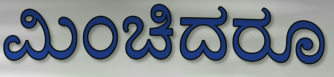
ಮಿಂಚಿದರೂ